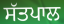
ਸੱਤਪਾਲ